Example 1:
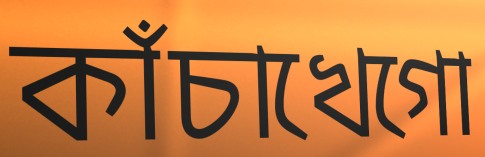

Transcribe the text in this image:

কাঁচাখেগো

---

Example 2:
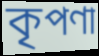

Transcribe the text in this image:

কৃপণা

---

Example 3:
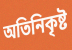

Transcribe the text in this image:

অতিনিকৃষ্ট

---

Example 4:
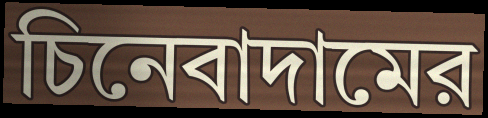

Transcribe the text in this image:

চিনেবাদামের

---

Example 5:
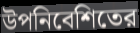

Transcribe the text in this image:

উপনিবেশিতের